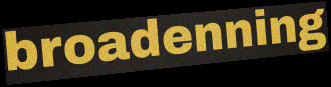
broadenning